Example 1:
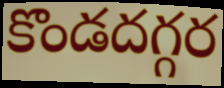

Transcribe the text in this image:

కొండదగ్గర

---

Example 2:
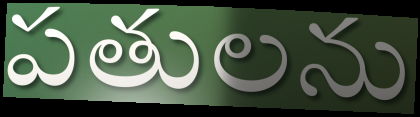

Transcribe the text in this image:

పతులను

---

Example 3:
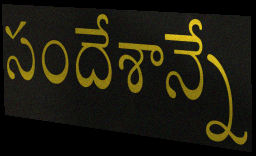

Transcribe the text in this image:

సందేశాన్నే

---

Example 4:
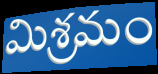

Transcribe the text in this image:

మిశ్రమం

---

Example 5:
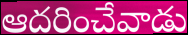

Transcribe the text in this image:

ఆదరించేవాడు